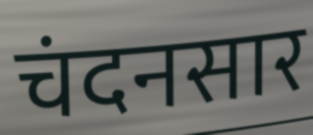
चंदनसार